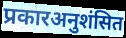
प्रकारअनुशंसित